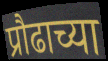
प्रौढाच्या